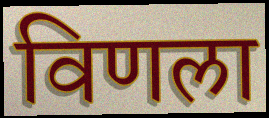
विणला